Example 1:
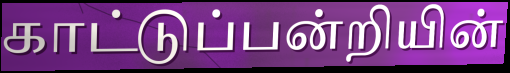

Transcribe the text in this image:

காட்டுப்பன்றியின்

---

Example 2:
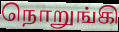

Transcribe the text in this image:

நொறுங்கி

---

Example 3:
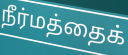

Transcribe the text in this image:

நீர்மத்தைக்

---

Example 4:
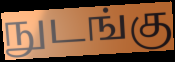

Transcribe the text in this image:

நுடங்கு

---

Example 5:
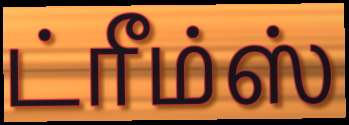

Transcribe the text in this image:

ட்ரீம்ஸ்